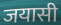
जयासी